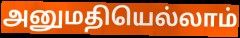
அனுமதியெல்லாம்